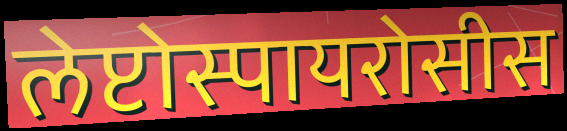
लेप्टोस्पायरोसीस